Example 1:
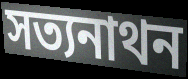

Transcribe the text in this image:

সত্যনাথন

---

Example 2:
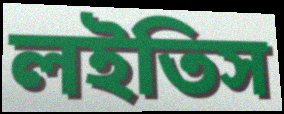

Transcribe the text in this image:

লইতিস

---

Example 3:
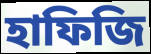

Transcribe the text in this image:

হাফিজি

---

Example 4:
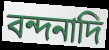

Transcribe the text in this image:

বন্দনাদি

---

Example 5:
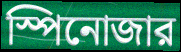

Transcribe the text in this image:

স্পিনোজার